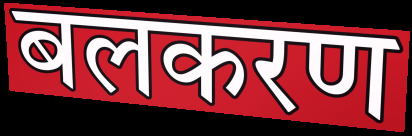
बलकरण